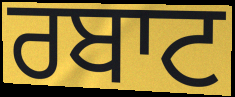
ਰਬਾਟ